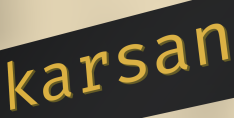
karsan